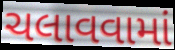
ચલાવવામાં